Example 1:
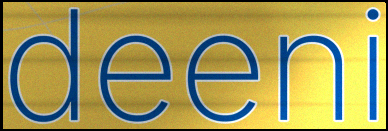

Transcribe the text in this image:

deeni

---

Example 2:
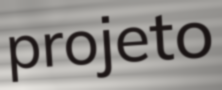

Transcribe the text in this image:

projeto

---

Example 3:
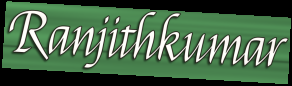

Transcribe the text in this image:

Ranjithkumar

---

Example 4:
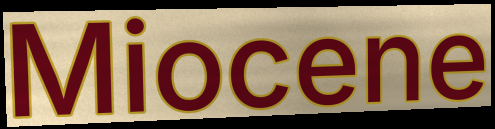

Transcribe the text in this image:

Miocene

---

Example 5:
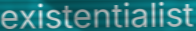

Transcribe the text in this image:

existentialist